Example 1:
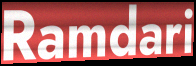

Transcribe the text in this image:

Ramdari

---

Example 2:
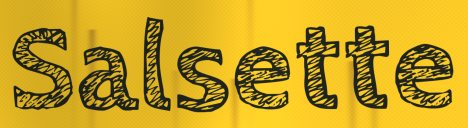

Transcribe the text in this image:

Salsette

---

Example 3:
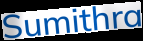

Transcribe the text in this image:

Sumithra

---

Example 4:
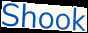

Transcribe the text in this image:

Shook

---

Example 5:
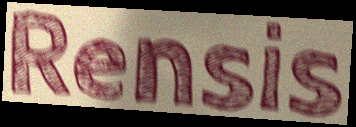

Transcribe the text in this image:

Rensis